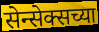
सेन्सेक्सच्या